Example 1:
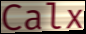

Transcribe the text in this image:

Calx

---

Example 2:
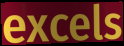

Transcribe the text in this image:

excels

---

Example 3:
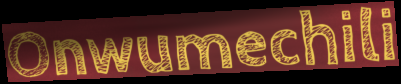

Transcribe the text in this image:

Onwumechili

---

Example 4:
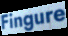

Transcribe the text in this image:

Fingure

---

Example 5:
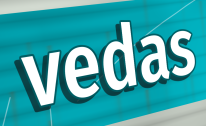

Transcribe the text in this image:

vedas